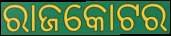
ରାଜକୋଟର